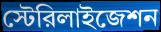
স্টেরিলাইজেশন